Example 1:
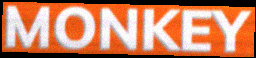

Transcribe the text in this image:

MONKEY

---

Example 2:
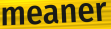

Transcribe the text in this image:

meaner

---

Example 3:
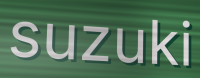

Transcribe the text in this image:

suzuki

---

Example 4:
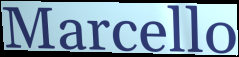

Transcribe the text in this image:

Marcello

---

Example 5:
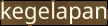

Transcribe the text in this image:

kegelapan